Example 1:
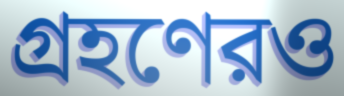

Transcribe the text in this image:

গ্রহণেরও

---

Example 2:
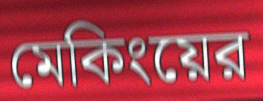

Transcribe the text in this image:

মেকিংয়ের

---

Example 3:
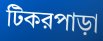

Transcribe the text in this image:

টিকরপাড়া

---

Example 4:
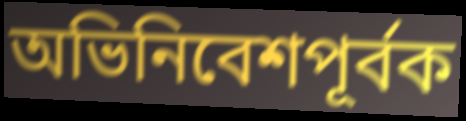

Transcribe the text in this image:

অভিনিবেশপূর্বক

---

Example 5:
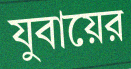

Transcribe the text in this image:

যুবায়ের